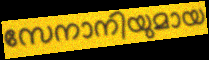
സേനാനിയുമായ